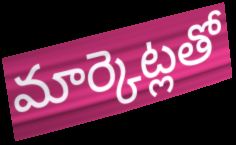
మార్కెట్లతో